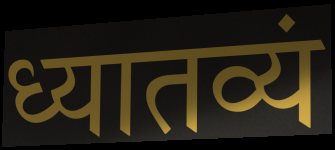
ध्यातव्यं